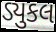
ડ્યુકલ